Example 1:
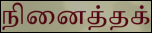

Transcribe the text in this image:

நினைத்தக்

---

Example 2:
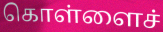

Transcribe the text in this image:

கொள்ளைச்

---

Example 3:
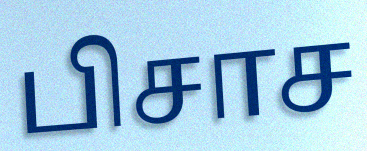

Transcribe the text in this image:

பிசாச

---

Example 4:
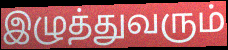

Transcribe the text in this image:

இழுத்துவரும்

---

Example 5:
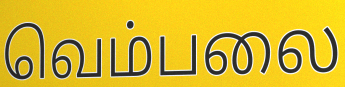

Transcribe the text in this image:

வெம்பலை